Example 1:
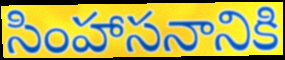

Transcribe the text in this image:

సింహాసనానికి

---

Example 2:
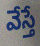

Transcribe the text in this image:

వేస్తే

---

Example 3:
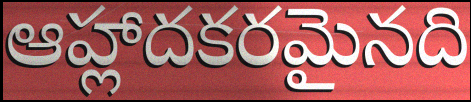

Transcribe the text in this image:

ఆహ్లాదకరమైనది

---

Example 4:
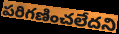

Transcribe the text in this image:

పరిగణించలేదని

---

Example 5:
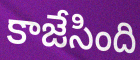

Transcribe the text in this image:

కాజేసింది